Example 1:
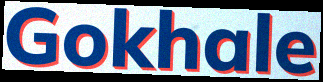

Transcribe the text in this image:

Gokhale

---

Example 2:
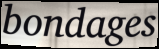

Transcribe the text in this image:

bondages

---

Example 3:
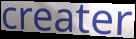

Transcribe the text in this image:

creater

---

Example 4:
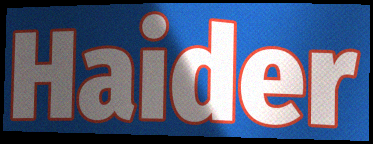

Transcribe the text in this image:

Haider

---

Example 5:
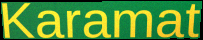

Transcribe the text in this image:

Karamat